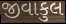
જીવાકુલ